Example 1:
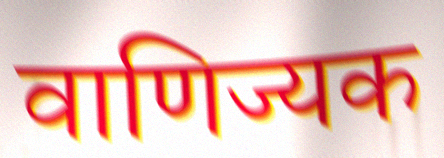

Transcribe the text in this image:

वाणिज्यक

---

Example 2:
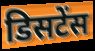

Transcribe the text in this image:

डिसटेंस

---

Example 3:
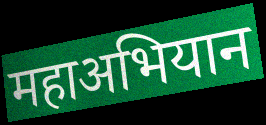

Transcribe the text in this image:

महाअभियान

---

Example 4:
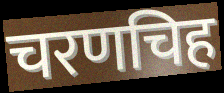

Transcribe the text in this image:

चरणचिह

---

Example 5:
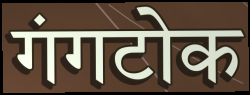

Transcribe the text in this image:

गंगटोक